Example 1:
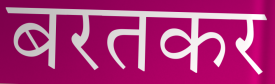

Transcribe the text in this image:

बरतकर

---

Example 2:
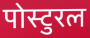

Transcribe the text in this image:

पोस्टुरल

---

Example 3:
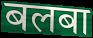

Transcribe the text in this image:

बलबा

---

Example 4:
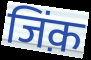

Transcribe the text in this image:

जिंक़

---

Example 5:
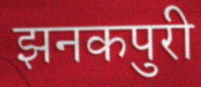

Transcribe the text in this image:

झनकपुरी